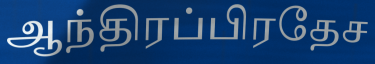
ஆந்திரப்பிரதேச